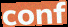
conf